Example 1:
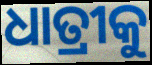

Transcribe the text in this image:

ଧାତ୍ରୀକୁ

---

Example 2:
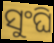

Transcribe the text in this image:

ସୁଂଘି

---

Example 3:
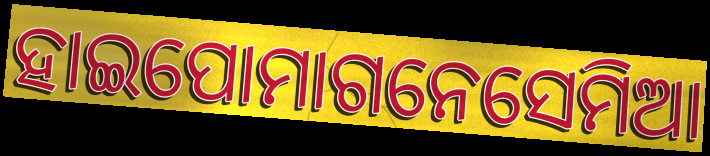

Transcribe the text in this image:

ହାଇପୋମାଗନେସେମିଆ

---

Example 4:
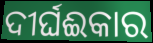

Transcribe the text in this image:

ଦୀର୍ଘଈକାର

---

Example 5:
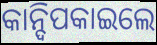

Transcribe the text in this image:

କାନ୍ଦିପକାଇଲେ